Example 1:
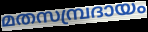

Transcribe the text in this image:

മതസമ്പ്രദായം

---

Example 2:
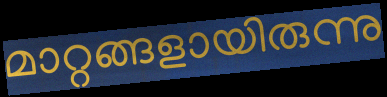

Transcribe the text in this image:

മാറ്റങ്ങളായിരുന്നു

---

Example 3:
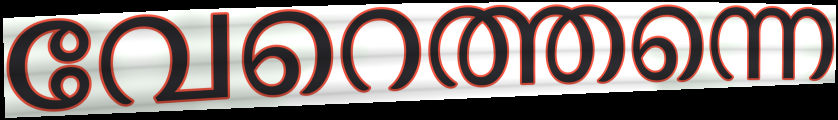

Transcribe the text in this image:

വേറെത്തന്നെ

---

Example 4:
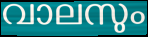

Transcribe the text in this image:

വാലസും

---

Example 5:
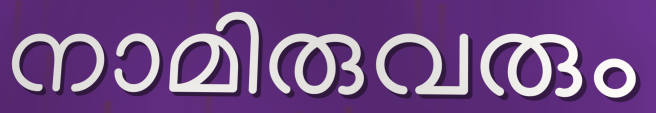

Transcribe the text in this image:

നാമിരുവരും